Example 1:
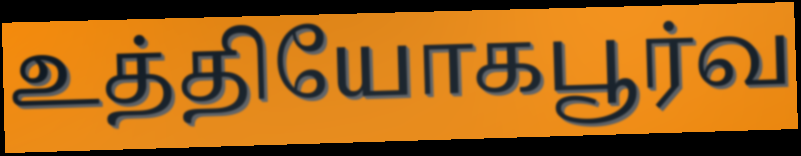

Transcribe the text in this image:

உத்தியோகபூர்வ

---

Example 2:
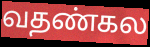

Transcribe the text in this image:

வதண்கல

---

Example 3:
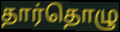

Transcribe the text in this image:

தார்தொழு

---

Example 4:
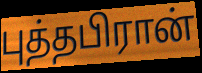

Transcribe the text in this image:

புத்தபிரான்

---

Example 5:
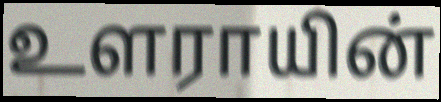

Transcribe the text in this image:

உளராயின்